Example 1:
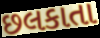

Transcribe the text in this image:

છલકાતા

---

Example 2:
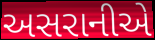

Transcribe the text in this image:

અસરાનીએ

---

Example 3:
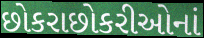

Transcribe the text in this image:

છોકરાછોકરીઓનાં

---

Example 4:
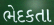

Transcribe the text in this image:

ભેદકતા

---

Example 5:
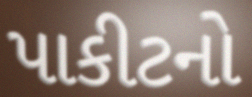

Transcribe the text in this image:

પાકીટનો